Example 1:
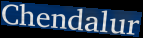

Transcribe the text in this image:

Chendalur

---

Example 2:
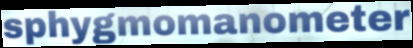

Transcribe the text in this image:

sphygmomanometer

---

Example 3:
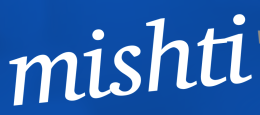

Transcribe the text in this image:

mishti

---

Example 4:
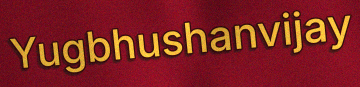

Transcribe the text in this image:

Yugbhushanvijay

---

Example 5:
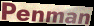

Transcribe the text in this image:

Penman